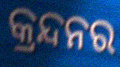
କ୍ରନ୍ଦନର